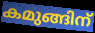
കമുങ്ങിന്